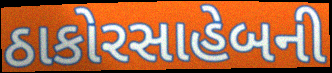
ઠાકોરસાહેબની